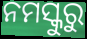
ନମସ୍କୁରୁ